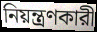
নিয়ন্ত্রণকারী